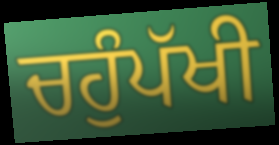
ਚਹੁੰਪੱਖੀ